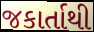
જકાર્તાથી